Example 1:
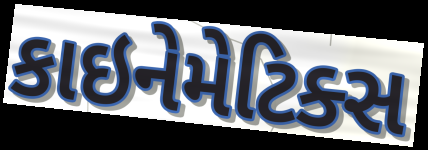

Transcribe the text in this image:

કાઇનેમેટિક્સ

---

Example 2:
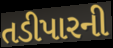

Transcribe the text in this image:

તડીપારની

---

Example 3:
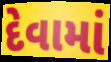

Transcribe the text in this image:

દેવામાં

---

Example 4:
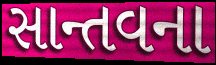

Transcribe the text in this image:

સાન્તવના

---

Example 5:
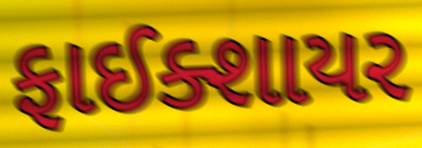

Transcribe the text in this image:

ફાઈક્શાયર